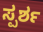
ಸ್ಪರ್ಶ